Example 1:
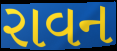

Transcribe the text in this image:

રાવન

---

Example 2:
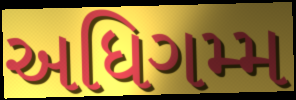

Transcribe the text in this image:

અધિગમ્મ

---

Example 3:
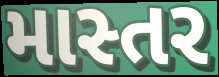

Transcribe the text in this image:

માસ્તર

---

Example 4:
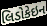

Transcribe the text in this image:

લિડોકેઇન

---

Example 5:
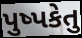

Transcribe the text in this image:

પુષ્પકેતુ